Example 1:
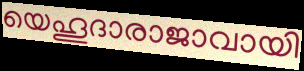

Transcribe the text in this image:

യെഹൂദാരാജാവായി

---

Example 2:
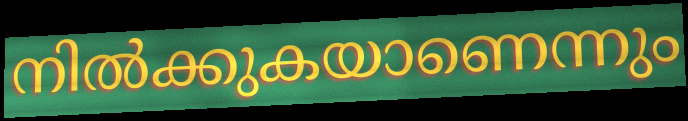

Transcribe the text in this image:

നിൽക്കുകയാണെന്നും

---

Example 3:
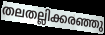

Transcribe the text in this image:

തലതല്ലിക്കരഞ്ഞു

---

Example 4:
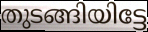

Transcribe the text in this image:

തുടങ്ങിയിട്ടേ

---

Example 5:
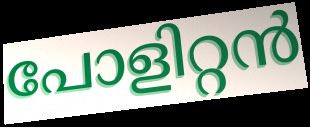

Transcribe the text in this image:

പോളിറ്റൻ